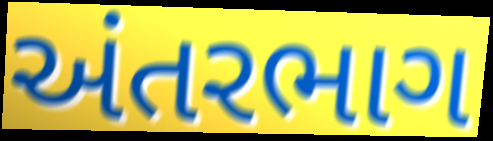
અંતરભાગ